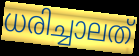
ധരിച്ചാലത്